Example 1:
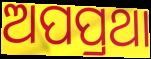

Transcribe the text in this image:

ଅପପ୍ରଥା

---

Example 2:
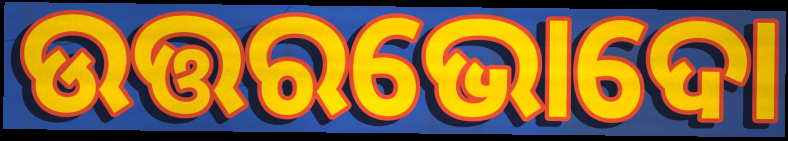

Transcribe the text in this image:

ଉତ୍ତରଭୋଦୋ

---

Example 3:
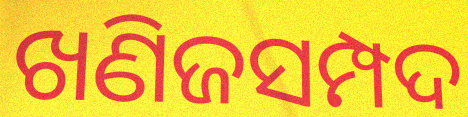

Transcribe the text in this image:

ଖଣିଜସମ୍ପଦ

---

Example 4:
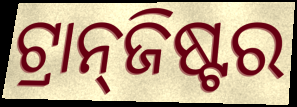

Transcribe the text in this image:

ଟ୍ରାନ୍‍ଜିଷ୍ଟର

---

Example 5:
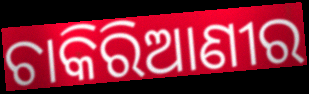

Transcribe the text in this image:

ଚାକିରିଆଣୀର